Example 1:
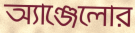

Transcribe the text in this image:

অ্যাঞ্জেলোর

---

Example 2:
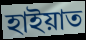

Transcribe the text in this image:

হাইয়াত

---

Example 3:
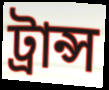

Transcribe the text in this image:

ট্রান্স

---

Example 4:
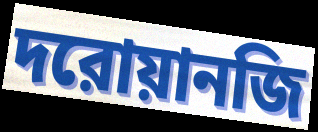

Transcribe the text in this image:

দরোয়ানজি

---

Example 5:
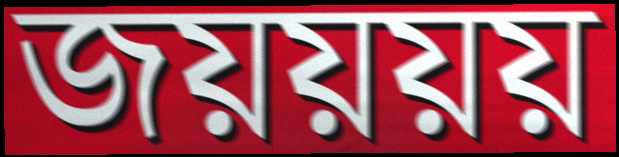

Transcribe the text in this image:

জয়য়য়য়